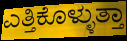
ಎತ್ತಿಕೊಳ್ಳುತ್ತಾ